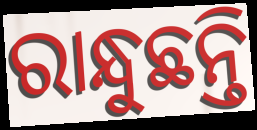
ରାନ୍ଧୁଛନ୍ତି